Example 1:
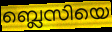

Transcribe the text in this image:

ബ്ലെസിയെ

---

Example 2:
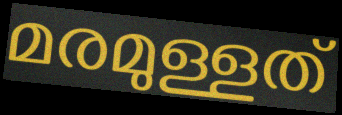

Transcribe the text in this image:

മരമുള്ളത്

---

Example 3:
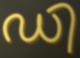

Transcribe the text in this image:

ഡി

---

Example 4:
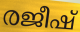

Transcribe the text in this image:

രജീഷ്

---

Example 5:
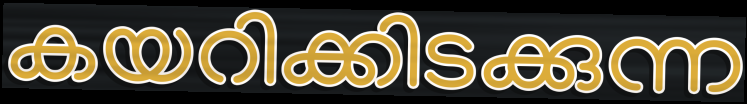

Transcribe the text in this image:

കയറിക്കിടക്കുന്ന